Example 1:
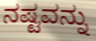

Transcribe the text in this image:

ನಷ್ಟವನ್ನು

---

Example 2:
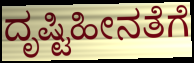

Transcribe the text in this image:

ದೃಷ್ಟಿಹೀನತೆಗೆ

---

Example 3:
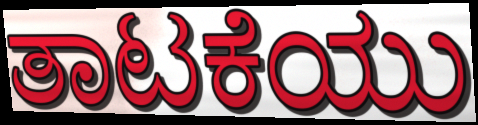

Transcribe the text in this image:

ತಾಟಕೆಯು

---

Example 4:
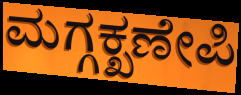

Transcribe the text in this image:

ಮಗ್ಗಕ್ಖಣೇಪಿ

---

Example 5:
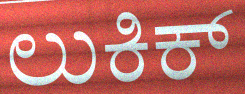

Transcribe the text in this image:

ಲುಕಿಕ್